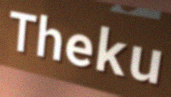
Theku